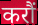
करौं